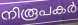
നിരൂപകർ